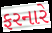
ફરનારે